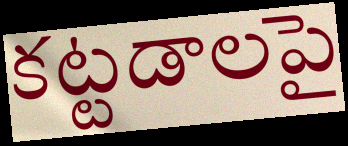
కట్టడాలపై